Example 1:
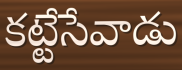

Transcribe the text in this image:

కట్టేసేవాడు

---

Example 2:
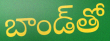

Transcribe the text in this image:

బాండ్‌తో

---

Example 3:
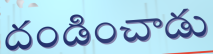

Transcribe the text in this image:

దండించాడు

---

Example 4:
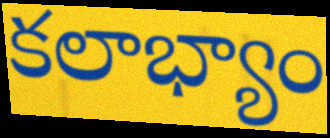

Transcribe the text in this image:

కలాభ్యాం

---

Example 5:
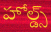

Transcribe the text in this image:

హోల్డ్స్